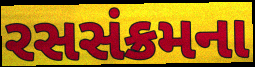
રસસંક્રમના